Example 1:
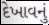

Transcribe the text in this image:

દેખાવનું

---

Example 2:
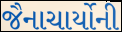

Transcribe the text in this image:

જૈનાચાર્યોની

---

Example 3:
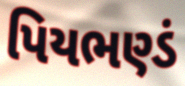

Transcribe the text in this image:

પિયભણ્ડં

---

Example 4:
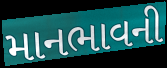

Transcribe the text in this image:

માનભાવની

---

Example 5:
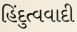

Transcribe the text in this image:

હિંદુત્વવાદી